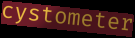
cystometer